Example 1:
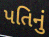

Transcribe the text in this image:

પતિનું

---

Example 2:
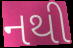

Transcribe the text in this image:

નથી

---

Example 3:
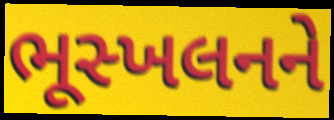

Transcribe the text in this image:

ભૂસ્ખલનને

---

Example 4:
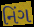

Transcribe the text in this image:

નિંગ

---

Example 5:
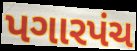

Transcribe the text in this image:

પગારપંચ